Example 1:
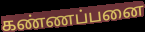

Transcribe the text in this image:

கண்ணப்பனை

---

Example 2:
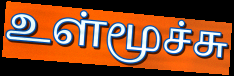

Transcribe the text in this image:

உள்மூச்சு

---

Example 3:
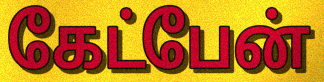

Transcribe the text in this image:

கேட்பேன்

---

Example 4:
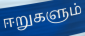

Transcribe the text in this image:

ஈறுகளும்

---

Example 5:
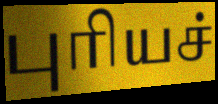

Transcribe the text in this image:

புரியச்